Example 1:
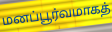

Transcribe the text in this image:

மனப்பூர்வமாகத்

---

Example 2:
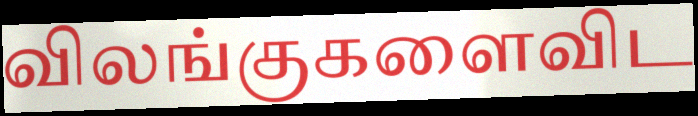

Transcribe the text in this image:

விலங்குகளைவிட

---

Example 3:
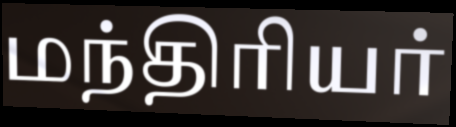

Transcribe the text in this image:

மந்திரியர்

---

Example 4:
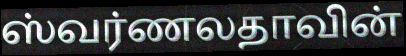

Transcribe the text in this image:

ஸ்வர்ணலதாவின்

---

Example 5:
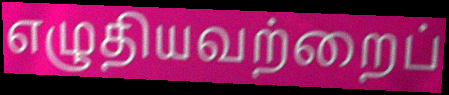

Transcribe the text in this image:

எழுதியவற்றைப்